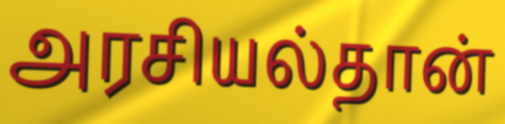
அரசியல்தான்